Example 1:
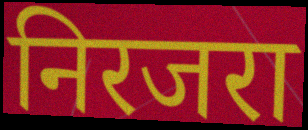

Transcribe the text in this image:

निरजरा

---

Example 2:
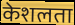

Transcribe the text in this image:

केशलता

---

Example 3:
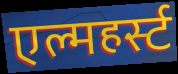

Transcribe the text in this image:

एल्महर्स्ट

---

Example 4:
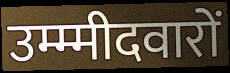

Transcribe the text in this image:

उम्म्मीदवारों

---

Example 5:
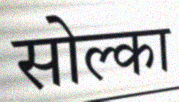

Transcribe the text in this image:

सोल्का